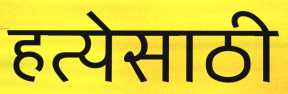
हत्येसाठी